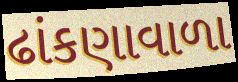
ઢાંકણાવાળા